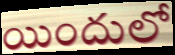
యిందులో